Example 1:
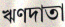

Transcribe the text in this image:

ঋণদাতা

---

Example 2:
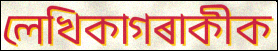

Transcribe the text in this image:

লেখিকাগৰাকীক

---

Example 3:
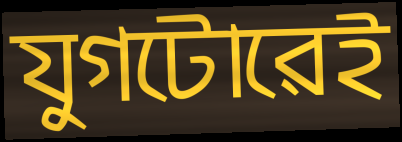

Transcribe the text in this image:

যুগটোৱেই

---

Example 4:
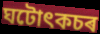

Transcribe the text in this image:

ঘটোৎকচৰ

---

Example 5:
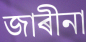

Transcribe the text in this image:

জাৰীনা